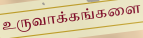
உருவாக்கங்களை